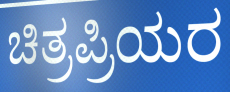
ಚಿತ್ರಪ್ರಿಯರ